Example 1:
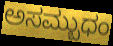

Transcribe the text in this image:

ಅಸಮ್ಬುಧಂ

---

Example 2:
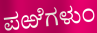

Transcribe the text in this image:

ಪಱೆಗಳುಂ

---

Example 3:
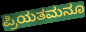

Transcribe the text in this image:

ಪ್ರಿಯತಮನೂ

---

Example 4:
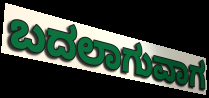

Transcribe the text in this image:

ಬದಲಾಗುವಾಗ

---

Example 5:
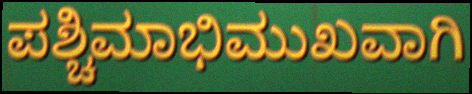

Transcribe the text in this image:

ಪಶ್ಚಿಮಾಭಿಮುಖವಾಗಿ